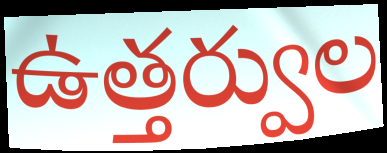
ఉత్తర్వుల